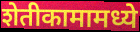
शेतीकामामध्ये